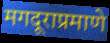
मगदूराप्रमाणे